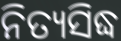
ନିତ୍ୟସିଦ୍ଧ